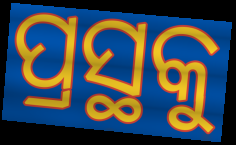
ପ୍ରସ୍ଥକୁ